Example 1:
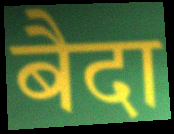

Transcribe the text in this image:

बैदा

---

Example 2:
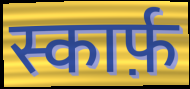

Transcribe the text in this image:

स्कार्फ़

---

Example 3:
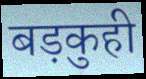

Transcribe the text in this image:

बड़कुही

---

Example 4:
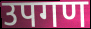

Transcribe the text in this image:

उपगण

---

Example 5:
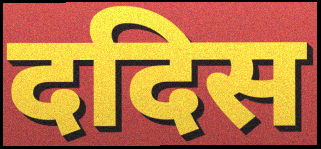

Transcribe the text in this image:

ददिस